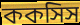
ককসিস